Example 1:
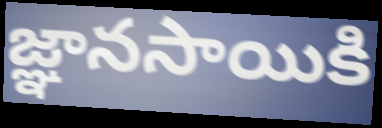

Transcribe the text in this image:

జ్ఞానసాయికి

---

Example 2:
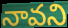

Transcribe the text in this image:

నావని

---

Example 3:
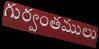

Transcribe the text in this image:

గుర్వంతములు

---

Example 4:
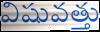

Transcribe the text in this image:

విషువత్తు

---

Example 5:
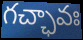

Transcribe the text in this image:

గచ్ఛావః